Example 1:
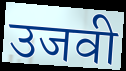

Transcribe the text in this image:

उजवी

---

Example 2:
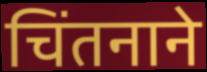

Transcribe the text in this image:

चिंतनाने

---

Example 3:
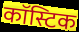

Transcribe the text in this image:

कॉस्टिक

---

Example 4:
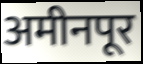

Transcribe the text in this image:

अमीनपूर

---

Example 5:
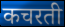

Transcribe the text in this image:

कचरती